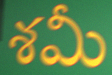
శమీ